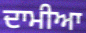
ਦਾਮੀਆ